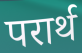
परार्थ